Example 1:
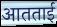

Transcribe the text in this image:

आतताई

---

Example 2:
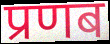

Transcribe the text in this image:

प्रणब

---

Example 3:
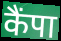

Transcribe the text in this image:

कैंपा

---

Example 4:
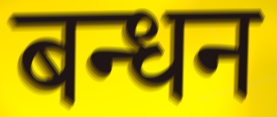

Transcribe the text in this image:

बन्धन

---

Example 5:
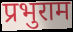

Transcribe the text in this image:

प्रभुराम